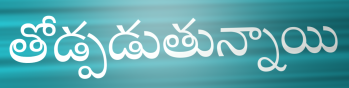
తోడ్పడుతున్నాయి